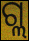
ଗ୍ଲ